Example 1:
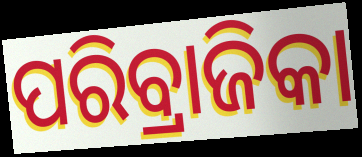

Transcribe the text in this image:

ପରିବ୍ରାଜିକା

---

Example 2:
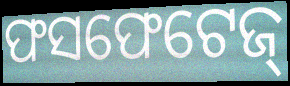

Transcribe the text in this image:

ଫସଫେଟେଜ୍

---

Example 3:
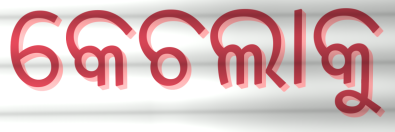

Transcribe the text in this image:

କେଚଲାକୁ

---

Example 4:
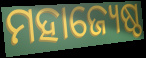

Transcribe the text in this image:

ମହାଜ୍ୟେଷ୍ଠ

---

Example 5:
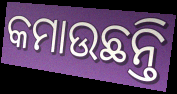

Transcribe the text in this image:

କମାଉଛନ୍ତି